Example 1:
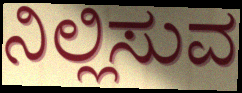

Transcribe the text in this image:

ನಿಲ್ಲಿಸುವ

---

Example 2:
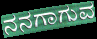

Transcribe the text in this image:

ನನಗಾಗುವ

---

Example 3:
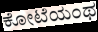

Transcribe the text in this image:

ಕೋಟೆಯಂಥ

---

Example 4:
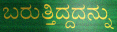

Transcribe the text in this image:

ಬರುತ್ತಿದ್ದದನ್ನು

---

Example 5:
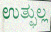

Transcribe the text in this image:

ಉತ್ಫುಲ್ಲ